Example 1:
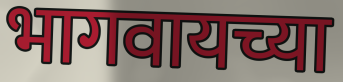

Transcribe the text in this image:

भागवायच्या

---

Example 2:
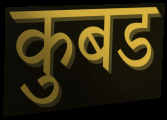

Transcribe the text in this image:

कुबड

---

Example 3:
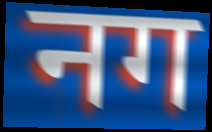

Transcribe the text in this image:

नग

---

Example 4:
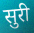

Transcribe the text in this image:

सुरी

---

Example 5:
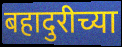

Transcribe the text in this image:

बहादुरीच्या